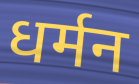
धर्मन